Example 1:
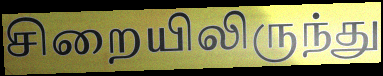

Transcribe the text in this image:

சிறையிலிருந்து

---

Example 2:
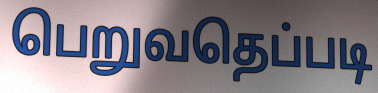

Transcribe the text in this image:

பெறுவதெப்படி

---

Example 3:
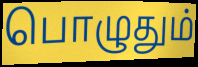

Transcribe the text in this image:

பொழுதும்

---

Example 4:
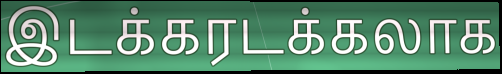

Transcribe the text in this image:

இடக்கரடக்கலாக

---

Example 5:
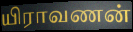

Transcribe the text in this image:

யிராவணன்